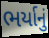
ભર્યાનું